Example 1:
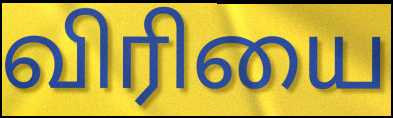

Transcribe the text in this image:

விரியை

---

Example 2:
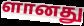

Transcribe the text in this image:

ளானது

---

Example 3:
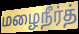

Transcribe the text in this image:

மழைநீர்த்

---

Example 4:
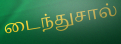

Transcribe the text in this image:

டைந்துசால்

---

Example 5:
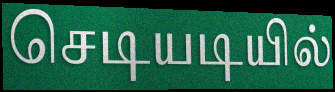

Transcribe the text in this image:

செடியடியில்